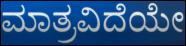
ಮಾತ್ರವಿದೆಯೇ